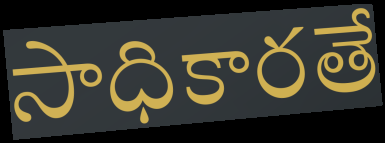
సాధికారతే